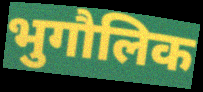
भुगौलिक